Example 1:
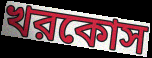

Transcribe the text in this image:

খরকোস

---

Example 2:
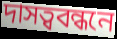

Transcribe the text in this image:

দাসত্ববন্ধনে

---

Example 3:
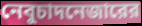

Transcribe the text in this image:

নেবুচাদনেজারের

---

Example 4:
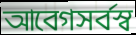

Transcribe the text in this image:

আবেগসর্বস্ব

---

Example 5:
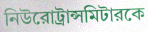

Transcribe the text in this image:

নিউরোট্রান্সমিটারকে